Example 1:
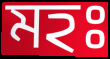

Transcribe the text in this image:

মহঃ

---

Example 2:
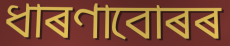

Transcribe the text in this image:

ধাৰণাবোৰৰ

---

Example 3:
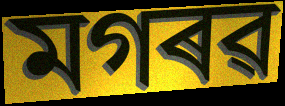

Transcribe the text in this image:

মগৰৱ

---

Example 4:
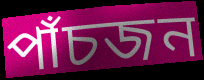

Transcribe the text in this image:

পাঁচজন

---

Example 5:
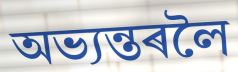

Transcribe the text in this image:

অভ্যন্তৰলৈ